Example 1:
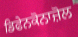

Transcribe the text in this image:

ਡਿਫੇਨਕੋਨਾਜ਼ੋਲ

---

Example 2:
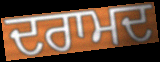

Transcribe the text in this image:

ਦਰਾਮਦ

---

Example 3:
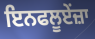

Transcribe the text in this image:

ਇਨਫਲੂਏਂਜ਼ਾ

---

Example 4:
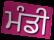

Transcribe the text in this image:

ਮੰਡੀ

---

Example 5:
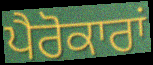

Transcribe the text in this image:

ਪੈਰੋਕਾਰਾਂ